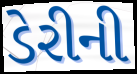
ડેરીની